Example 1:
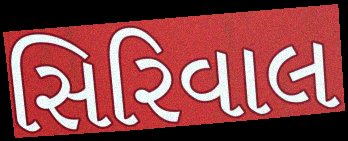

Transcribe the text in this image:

સિરિવાલ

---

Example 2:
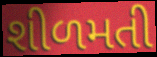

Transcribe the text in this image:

શીળમતી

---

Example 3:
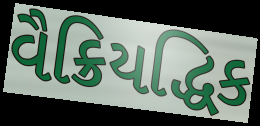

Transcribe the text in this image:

વૈક્રિયદ્ધિક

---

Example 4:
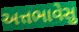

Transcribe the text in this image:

અત્તભાવેસુ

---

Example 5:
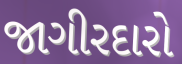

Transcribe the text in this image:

જાગીરદારો